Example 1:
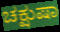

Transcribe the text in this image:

ಚಕ್ಷುಷಾ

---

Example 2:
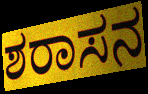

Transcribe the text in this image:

ಶರಾಸನ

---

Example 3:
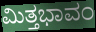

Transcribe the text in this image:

ಮಿತ್ತಭಾವಂ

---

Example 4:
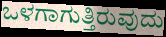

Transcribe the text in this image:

ಒಳಗಾಗುತ್ತಿರುವುದು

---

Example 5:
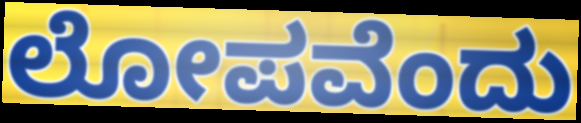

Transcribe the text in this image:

ಲೋಪವೆಂದು